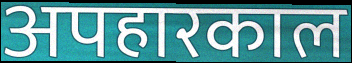
अपहारकाल